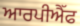
ਆਰਪੀਐੱਫ